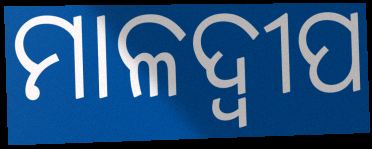
ମାଳଦ୍ଵୀପ